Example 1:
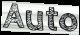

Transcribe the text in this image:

Auto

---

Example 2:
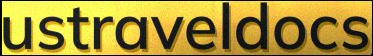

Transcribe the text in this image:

ustraveldocs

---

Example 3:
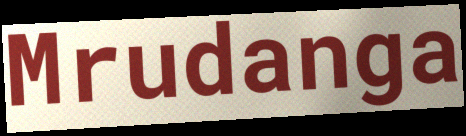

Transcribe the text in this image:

Mrudanga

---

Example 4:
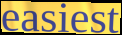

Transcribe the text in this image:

easiest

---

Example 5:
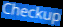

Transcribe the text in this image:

Checkup